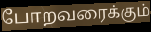
போறவரைக்கும்